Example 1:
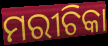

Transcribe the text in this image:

ମରୀଚିକା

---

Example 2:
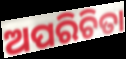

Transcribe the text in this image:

ଅପରିଚିତା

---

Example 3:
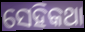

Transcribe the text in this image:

ସେହିକଥା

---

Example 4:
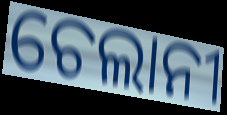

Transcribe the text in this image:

ଚେଲାନୀ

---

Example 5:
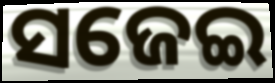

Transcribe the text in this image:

ସଜେଇ